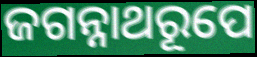
ଜଗନ୍ନାଥରୂପେ